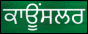
ਕਾਊਂਸਲਰ